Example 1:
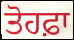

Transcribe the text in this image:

ਤੋਹਫ਼ਾ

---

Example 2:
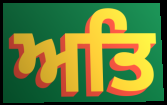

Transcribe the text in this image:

ਅਤਿ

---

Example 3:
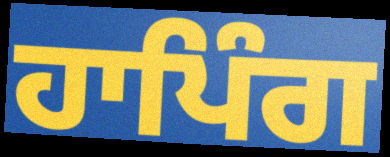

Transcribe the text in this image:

ਹਾਪਿੰਗ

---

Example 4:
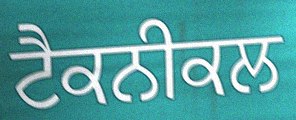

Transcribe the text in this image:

ਟੈਕਨੀਕਲ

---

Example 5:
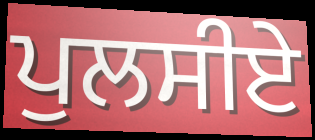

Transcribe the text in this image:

ਪੁਲਸੀਏ